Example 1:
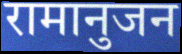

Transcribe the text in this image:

रामानुजन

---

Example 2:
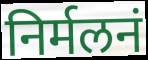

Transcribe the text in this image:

निर्मलनं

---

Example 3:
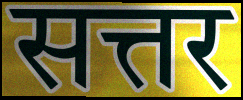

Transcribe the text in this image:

सत्तर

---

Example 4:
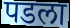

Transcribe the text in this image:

पडला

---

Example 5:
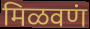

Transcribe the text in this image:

मिळवणं